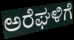
ಅರೆಘಳಿಗೆ